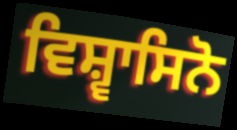
ਵਿਸ਼੍ਵਾਸਿਨੋ